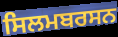
ਸਿਲਮਬਰਸਨ